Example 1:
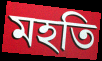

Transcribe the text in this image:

মহতি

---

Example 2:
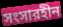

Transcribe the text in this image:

সংসারহীন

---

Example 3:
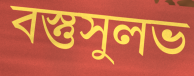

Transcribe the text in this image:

বস্তুসুলভ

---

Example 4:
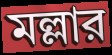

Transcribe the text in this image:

মল্লার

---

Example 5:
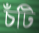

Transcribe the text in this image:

চঁটি